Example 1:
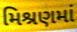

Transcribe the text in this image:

મિશ્રણમાં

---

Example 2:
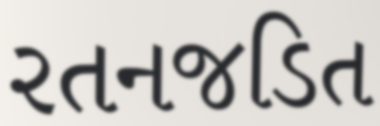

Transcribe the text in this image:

રતનજડિત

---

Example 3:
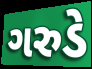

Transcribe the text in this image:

ગરુડે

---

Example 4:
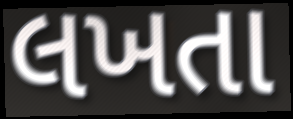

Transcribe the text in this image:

લખતા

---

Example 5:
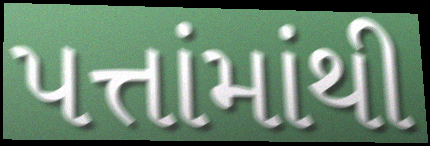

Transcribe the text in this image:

પત્તાંમાંથી